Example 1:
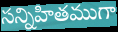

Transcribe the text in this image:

సన్నిహితముగా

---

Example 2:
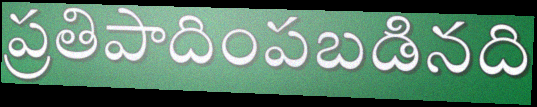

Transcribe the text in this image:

ప్రతిపాదింపబడినది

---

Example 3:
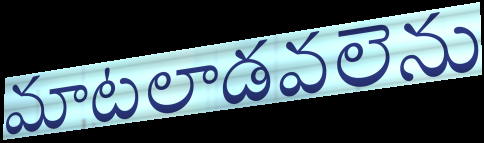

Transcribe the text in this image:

మాటలాడవలెను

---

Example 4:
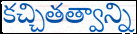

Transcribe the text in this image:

కచ్చితత్వాన్ని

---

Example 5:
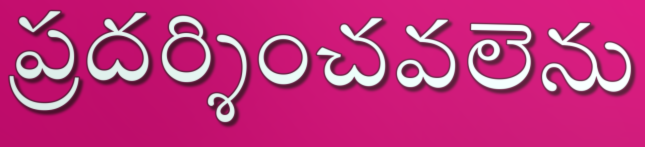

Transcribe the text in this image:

ప్రదర్శించవలెను